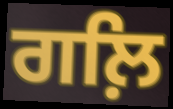
ਗਲ਼ਿ